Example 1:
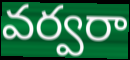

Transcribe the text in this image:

వర్వరా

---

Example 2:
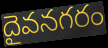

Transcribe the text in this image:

దైవనగరం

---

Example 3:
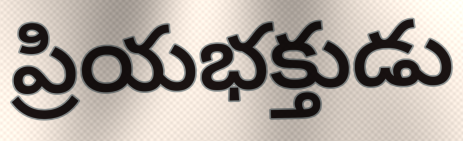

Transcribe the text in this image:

ప్రియభక్తుడు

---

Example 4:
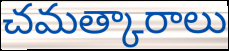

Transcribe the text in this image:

చమత్కారాలు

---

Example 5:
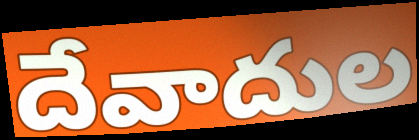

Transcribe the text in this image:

దేవాదుల